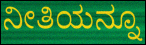
ನೀತಿಯನ್ನೂ